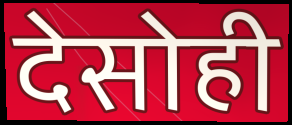
देसोही